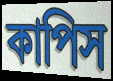
কাপিস